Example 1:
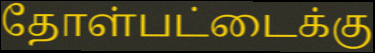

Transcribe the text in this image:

தோள்பட்டைக்கு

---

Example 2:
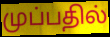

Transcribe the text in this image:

முப்பதில்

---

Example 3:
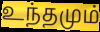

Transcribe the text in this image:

உந்தமும்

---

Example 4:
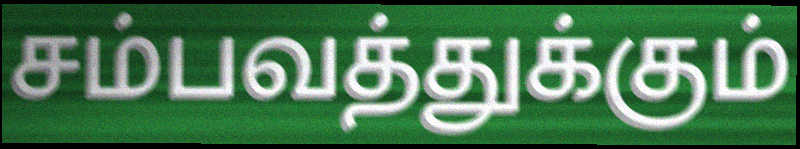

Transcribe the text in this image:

சம்பவத்துக்கும்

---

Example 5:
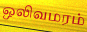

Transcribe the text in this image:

ஒலிவமரம்